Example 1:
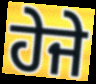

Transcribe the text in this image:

ਹੇਜੇ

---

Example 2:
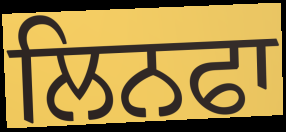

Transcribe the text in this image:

ਲਿਨਫਾ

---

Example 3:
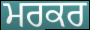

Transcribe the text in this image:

ਮਰਕਰ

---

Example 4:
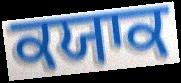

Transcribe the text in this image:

ਕਯਾਕ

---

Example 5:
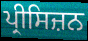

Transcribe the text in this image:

ਪ੍ਰੀਸਿਜ਼ਨ